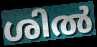
ശിൽ